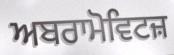
ਅਬਰਾਮੋਵਿਟਜ਼